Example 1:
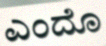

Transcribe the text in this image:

ಎಂದೊ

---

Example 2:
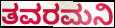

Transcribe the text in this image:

ತವರಮನಿ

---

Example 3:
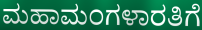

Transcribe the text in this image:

ಮಹಾಮಂಗಳಾರತಿಗೆ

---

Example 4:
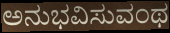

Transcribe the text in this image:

ಅನುಭವಿಸುವಂಥ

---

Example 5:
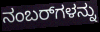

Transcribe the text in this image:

ನಂಬರ್‌ಗಳನ್ನು